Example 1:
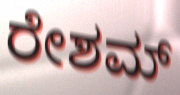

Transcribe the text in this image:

ರೇಶಮ್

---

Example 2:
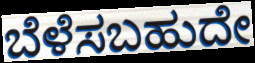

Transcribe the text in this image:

ಬೆಳೆಸಬಹುದೇ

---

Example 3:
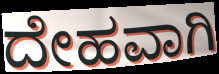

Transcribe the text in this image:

ದೇಹವಾಗಿ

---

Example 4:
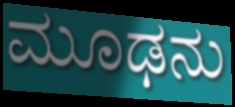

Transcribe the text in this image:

ಮೂಢನು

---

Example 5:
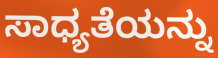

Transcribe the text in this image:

ಸಾಧ್ಯತೆಯನ್ನು